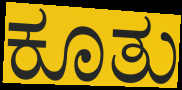
ಕೂತು